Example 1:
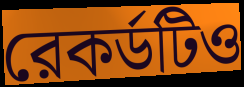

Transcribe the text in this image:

রেকর্ডটিও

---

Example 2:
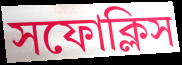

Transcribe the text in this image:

সফোক্লিস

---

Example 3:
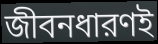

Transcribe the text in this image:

জীবনধারণই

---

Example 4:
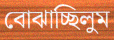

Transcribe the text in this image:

বোঝাচ্ছিলুম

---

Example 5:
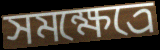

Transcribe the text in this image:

সমক্ষেত্রে